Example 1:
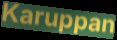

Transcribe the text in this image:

Karuppan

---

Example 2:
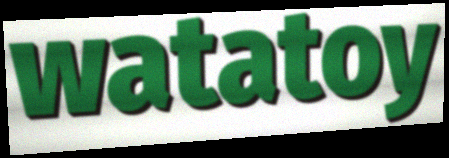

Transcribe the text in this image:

watatoy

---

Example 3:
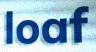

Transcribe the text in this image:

loaf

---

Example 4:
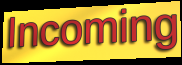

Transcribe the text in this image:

Incoming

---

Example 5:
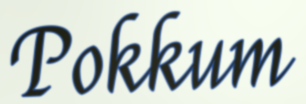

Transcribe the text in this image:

Pokkum